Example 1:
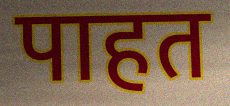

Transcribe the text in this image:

पाहत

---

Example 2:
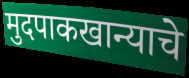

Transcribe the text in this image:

मुदपाकखान्याचे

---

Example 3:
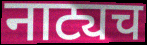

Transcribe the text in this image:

नाट्यच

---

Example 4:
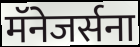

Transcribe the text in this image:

मॅनेजर्सना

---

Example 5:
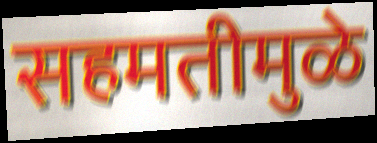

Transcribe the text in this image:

सहमतीमुळे